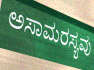
ಅಸಾಮರಸ್ಯವು